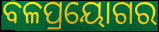
ବଳପ୍ରୟୋଗର